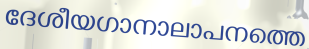
ദേശീയഗാനാലാപനത്തെ